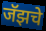
जॅझचे